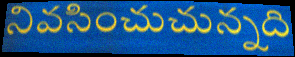
నివసించుచున్నది